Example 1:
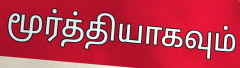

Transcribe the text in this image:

மூர்த்தியாகவும்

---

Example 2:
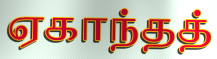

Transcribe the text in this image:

ஏகாந்தத்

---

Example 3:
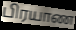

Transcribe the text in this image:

பிரயாண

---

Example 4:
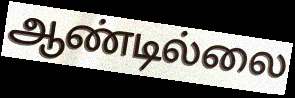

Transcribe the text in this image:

ஆண்டில்லை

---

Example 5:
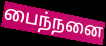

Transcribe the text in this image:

பைந்நனை